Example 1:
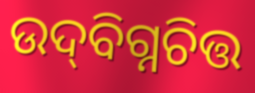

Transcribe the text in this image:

ଉଦ୍‌ବିଗ୍ନଚିତ୍ତ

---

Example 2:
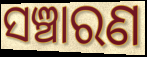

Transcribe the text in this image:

ସଞ୍ଚାରଣ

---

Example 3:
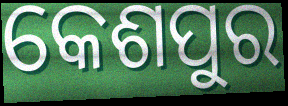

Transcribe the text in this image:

କେଶପୁର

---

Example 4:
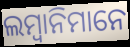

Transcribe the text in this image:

ଲମ୍ବାନିମାନେ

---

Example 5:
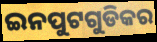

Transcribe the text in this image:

ଇନପୁଟଗୁଡିକର